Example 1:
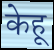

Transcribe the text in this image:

केहू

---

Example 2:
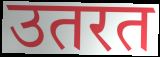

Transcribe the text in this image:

उतरत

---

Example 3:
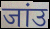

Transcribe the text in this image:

जांउ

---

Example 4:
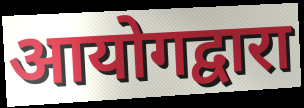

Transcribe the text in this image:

आयोगद्वारा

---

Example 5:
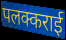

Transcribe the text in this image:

पलक्कराई